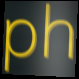
ph